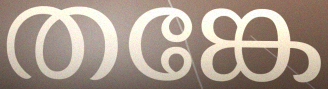
തങ്കേ